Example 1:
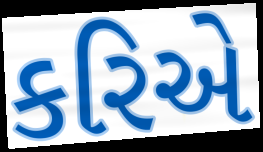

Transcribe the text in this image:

કરિએ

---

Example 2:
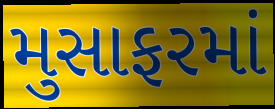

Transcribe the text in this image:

મુસાફરમાં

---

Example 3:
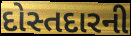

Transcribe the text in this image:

દોસ્તદારની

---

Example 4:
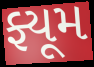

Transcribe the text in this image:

ફ્યૂમ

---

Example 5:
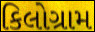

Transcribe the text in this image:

કિલોગ્રામ